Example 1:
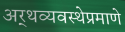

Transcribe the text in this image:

अर्थव्यवस्थेप्रमाणे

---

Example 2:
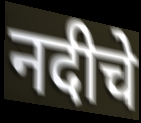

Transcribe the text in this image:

नदीचे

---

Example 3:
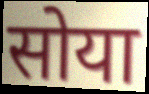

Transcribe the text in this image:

सोया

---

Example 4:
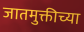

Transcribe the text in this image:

जातमुक्तीच्या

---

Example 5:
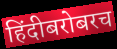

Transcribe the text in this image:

हिंदीबरोबरच